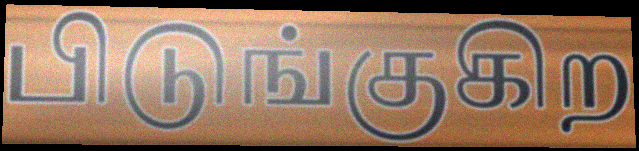
பிடுங்குகிற